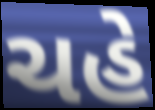
ચહે